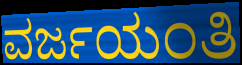
ವರ್ಜಯಂತಿ